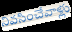
నివసించేవాళ్లు